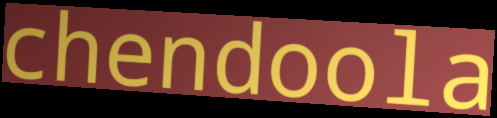
chendoola